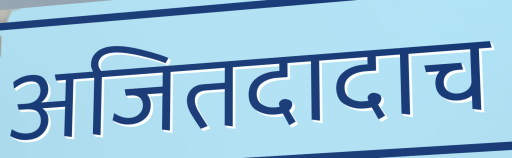
अजितदादाच